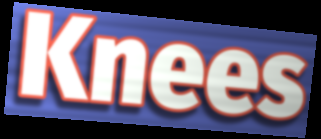
Knees